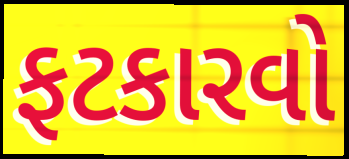
ફટકારવો